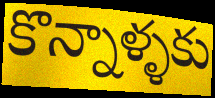
కొన్నాళ్ళకు